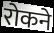
रोकने